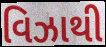
વિઝાથી